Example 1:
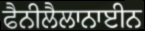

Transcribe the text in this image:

ਫੈਨੀਲੈਲਾਨਾਈਨ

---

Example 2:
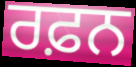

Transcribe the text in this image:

ਰਫ਼ਨ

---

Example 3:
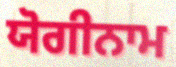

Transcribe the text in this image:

ਯੋਗੀਨਾਮ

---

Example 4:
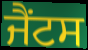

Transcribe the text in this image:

ਜੈਂਟਸ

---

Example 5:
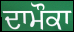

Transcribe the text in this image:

ਦਾਮੌਕਾ